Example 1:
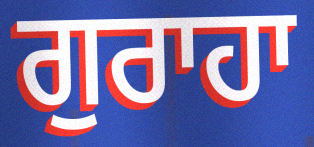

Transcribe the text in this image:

ਗੁਰਾਹਾ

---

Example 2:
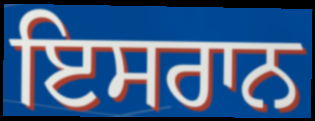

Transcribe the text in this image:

ਇਸਰਾਨ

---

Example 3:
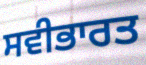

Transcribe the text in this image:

ਸਵੀਭਾਰਤ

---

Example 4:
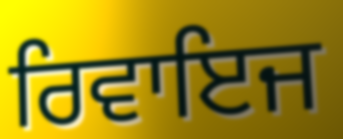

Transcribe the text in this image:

ਰਿਵਾਇਜ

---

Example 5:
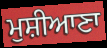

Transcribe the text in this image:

ਮੁਸ਼ੀਆਣਾ